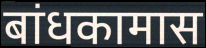
बांधकामास